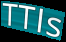
TTIs